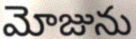
మోజును